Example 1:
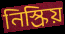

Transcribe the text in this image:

নিস্ক্রিয়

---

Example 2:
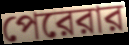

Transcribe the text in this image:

পেরেরার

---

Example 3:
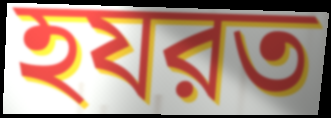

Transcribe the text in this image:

হযরত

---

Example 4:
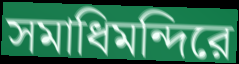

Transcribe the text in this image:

সমাধিমন্দিরে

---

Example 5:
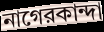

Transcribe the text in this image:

নাগেরকান্দা